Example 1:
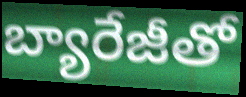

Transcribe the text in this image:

బ్యారేజీతో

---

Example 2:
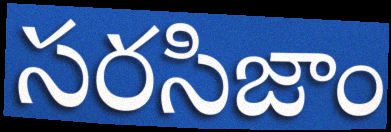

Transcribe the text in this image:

సరసిజాం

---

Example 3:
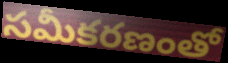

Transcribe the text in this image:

సమీకరణంతో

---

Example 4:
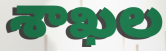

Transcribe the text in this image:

శాఖల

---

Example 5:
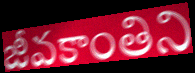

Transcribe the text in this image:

జీవకాంతిని